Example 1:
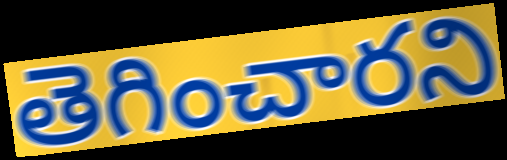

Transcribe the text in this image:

తెగించారని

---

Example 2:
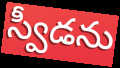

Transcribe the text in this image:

స్వీడను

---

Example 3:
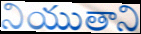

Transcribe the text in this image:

నియుతాని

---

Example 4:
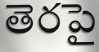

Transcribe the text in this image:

తెరపై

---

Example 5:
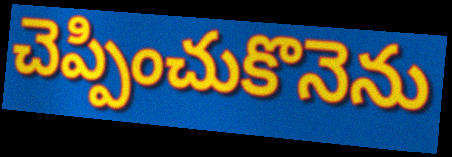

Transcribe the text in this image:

చెప్పించుకొనెను